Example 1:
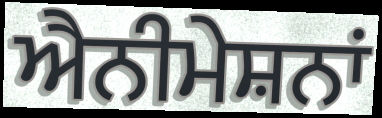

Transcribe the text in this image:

ਐਨੀਮੇਸ਼ਨਾਂ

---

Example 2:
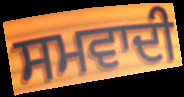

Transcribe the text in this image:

ਸਮਵਾਦੀ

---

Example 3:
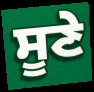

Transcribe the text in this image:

ਸੂਣੇ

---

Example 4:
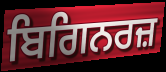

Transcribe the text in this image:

ਬਿਗਿਨਰਜ਼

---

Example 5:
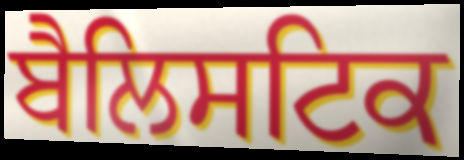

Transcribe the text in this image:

ਬੈਲਿਸਟਿਕ